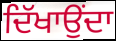
ਦਿੱਖਾਉਂਦਾ